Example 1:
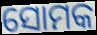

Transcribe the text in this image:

ସୋମକ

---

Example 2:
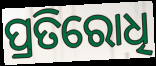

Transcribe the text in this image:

ପ୍ରତିରୋଧି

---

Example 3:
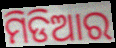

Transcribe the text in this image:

ମିଡିଆର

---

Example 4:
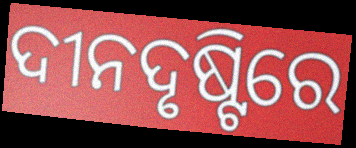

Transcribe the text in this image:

ଦୀନଦୃଷ୍ଟିରେ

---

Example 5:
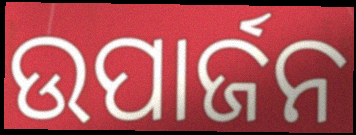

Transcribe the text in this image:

ଉପାର୍ଜନ